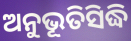
ଅନୁଭୂତିସିଦ୍ଧି